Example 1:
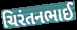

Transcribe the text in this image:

ચિરંતનભાઈ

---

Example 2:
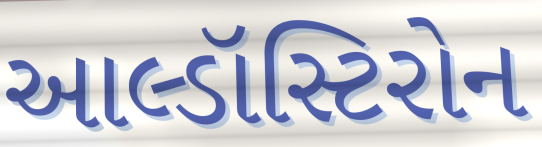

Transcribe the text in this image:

આલ્ડૉસ્ટિરોન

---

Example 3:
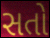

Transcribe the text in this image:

સતો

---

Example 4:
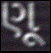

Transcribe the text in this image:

ણૂ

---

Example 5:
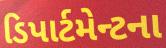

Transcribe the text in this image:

ડિપાર્ટમેન્ટના